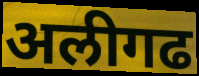
अलीगढ